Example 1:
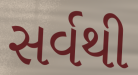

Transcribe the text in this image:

સર્વથી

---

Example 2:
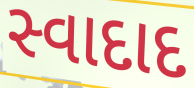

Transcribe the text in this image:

સ્વાદાદ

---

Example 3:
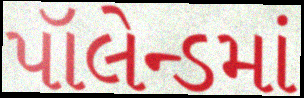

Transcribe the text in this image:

પૉલેન્ડમાં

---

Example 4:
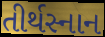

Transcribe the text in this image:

તીર્થસ્નાન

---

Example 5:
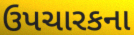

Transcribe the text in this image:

ઉપચારકના